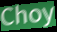
Choy